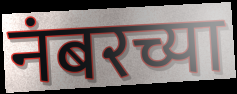
नंबरच्या